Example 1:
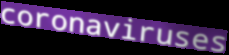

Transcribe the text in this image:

coronaviruses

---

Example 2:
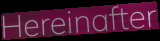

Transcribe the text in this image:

Hereinafter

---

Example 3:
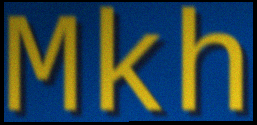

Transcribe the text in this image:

Mkh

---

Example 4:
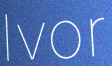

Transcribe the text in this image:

Ivor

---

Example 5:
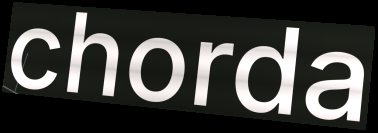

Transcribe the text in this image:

chorda